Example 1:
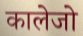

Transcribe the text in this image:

कालेजो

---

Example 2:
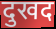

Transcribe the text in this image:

दुखद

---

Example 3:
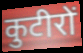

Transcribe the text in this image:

कुटीरों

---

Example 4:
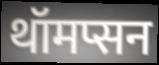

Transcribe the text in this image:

थॉमप्सन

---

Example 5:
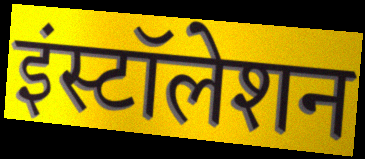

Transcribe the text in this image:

इंस्टॉलेशन